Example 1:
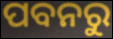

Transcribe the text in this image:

ପବନରୁ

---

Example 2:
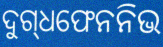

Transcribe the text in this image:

ଦୁଗ୍‍ଧଫେନନିଭ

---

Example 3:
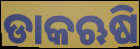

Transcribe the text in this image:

ଡାକଋଷି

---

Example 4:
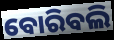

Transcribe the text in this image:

ବୋରିବଲି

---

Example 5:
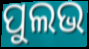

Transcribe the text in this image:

ପୁଲଭ